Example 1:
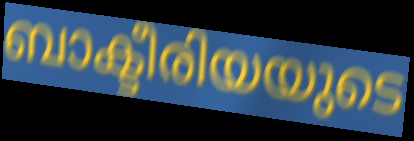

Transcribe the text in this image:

ബാക്ടീരിയയുടെ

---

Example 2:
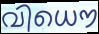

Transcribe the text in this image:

വിധൌ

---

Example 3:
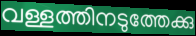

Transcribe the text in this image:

വള്ളത്തിനടുത്തേക്കു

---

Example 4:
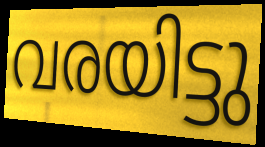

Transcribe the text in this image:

വരയിട്ടു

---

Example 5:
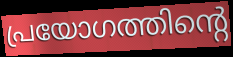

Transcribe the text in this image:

പ്രയോഗത്തിന്റെ